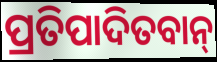
ପ୍ରତିପାଦିତବାନ୍